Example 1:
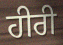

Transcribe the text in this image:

ਹੀਰੀ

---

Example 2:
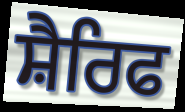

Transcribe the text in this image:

ਸ਼ੈਰਿਫ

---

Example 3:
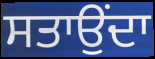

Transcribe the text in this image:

ਸਤਾਉਂਦਾ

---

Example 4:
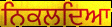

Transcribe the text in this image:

ਨਿਕਲਦਿਆ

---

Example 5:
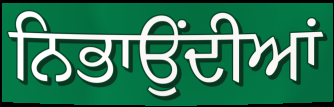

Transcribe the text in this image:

ਨਿਭਾਉਂਦੀਆਂ